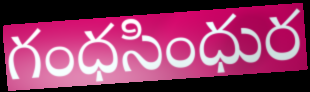
గంధసింధుర